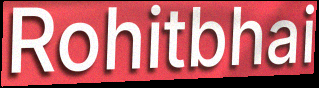
Rohitbhai